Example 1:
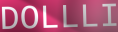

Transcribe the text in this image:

DOLLLI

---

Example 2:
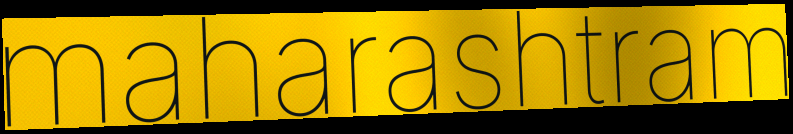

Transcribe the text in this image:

maharashtram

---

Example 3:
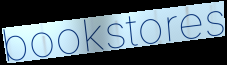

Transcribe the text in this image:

bookstores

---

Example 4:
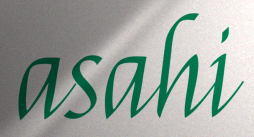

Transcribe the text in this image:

asahi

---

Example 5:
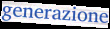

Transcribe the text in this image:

generazione